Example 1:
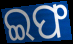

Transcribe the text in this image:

ଇଫ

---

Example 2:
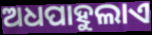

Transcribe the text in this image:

ଅଧପାହୁଲାଏ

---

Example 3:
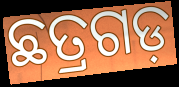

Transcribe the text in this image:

ଛତ୍ରଗଡ଼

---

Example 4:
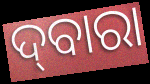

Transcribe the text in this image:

ଦ୍‌ବାରା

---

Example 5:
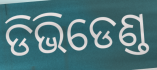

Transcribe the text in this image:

ଡିଭିଡେଣ୍ଡ